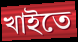
খাইতে